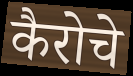
कैरोचे